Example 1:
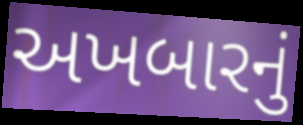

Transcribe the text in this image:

અખબારનું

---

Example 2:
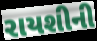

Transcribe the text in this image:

રાયશીની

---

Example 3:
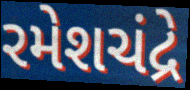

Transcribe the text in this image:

રમેશચંદ્રે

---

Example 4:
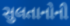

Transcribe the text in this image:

સુલતાનોની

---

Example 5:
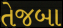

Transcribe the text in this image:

તેજબા